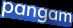
pangam